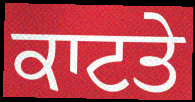
ਕਾਟਤੇ